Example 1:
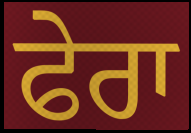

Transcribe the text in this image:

ਫੇਰਾ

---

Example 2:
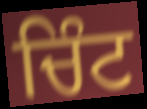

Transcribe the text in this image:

ਚਿੰਟ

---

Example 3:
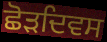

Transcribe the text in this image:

ਛੋੜਦਿਵਸ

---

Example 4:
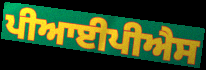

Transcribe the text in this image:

ਪੀਆਈਪੀਐਸ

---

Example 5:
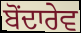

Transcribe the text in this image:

ਬੋਂਦਾਰੇਵ